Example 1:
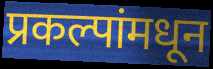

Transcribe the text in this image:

प्रकल्पांमधून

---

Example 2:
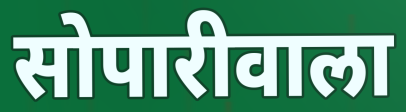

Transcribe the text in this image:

सोपारीवाला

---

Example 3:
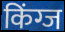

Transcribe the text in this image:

किंग्ज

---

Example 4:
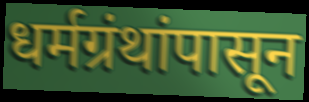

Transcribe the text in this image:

धर्मग्रंथांपासून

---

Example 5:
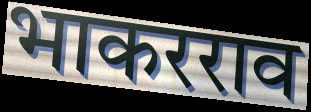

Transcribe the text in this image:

भाकरराव